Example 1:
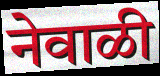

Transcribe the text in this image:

नेवाळी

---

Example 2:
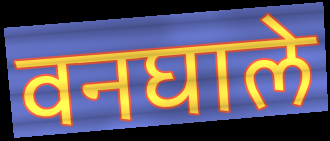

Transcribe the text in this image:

वनघाले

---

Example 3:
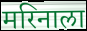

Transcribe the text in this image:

मरिनाला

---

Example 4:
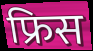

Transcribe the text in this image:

फ्रिस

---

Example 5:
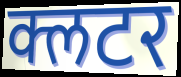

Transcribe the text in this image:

क्लटर